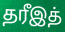
தரீஇத்